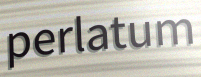
perlatum